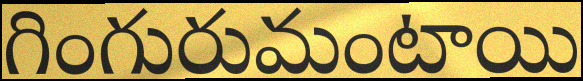
గింగురుమంటాయి